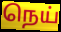
நெய்